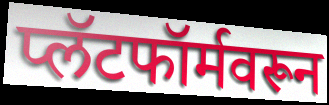
प्लॅटफॉर्मवरून